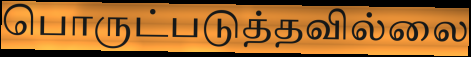
பொருட்படுத்தவில்லை